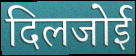
दिलजोई